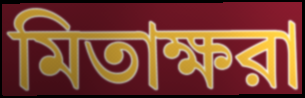
মিতাক্ষরা